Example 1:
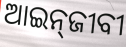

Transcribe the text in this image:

ଆଇନ୍‌ଜୀବୀ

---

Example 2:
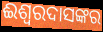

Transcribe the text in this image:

ଈଶ୍ଵରଦାସଙ୍କର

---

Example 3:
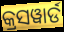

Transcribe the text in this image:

କ୍ରସୱାର୍ଡ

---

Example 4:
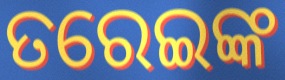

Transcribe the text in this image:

ତରେଇଙ୍କ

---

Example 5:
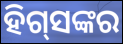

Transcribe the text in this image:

ହିଗ୍‌ସଙ୍କର